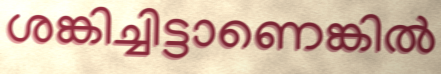
ശങ്കിച്ചിട്ടാണെങ്കിൽ